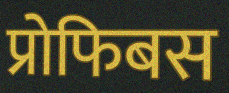
प्रोफिबस